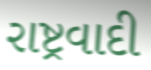
રાષ્ટ્રવાદી